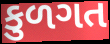
કુળગત